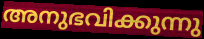
അനുഭവിക്കുന്നു